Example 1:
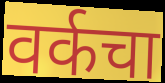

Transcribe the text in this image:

वर्कचा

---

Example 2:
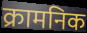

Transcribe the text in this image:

क्रामनिक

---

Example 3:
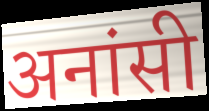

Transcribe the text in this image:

अनांसी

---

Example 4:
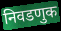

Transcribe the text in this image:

निवडणुक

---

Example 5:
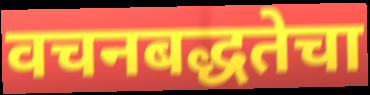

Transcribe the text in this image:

वचनबद्धतेचा